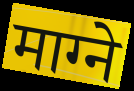
माग्ने